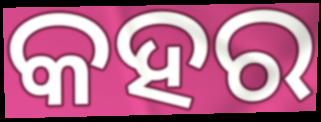
କହର